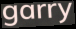
garry